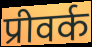
प्रीवर्क